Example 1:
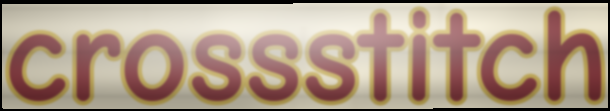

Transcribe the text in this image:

crossstitch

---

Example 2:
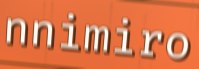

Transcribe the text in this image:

nnimiro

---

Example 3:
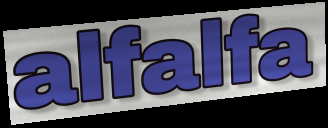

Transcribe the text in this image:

alfalfa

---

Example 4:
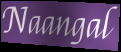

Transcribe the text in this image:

Naangal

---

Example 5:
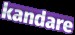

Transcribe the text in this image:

kandare